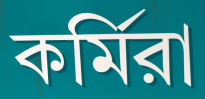
কর্মিরা